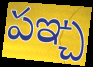
పఞ్చ